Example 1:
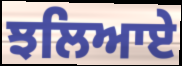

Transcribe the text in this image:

ਝਲਿਆਏ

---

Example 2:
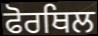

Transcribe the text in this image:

ਫੋਰਥਿਲ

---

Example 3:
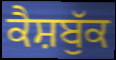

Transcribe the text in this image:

ਕੈਸ਼ਬੁੱਕ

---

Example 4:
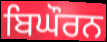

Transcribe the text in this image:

ਬਿਘੌਰਨ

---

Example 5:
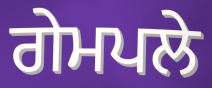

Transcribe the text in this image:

ਗੇਮਪਲੇ